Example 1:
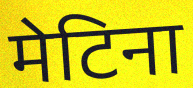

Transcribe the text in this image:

मेटिना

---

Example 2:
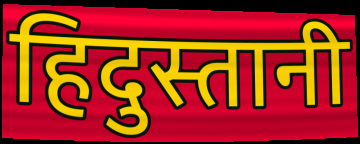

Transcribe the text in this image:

हिदुस्तानी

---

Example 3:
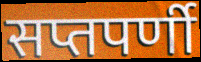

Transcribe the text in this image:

सप्तपर्णी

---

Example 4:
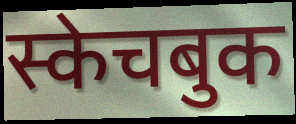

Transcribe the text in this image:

स्केचबुक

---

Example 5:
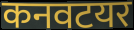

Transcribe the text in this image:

कनवटयर